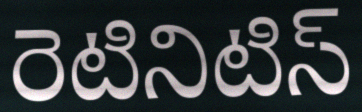
రెటినిటిస్